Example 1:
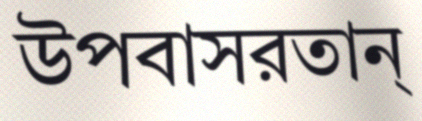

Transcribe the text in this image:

উপবাসরতান্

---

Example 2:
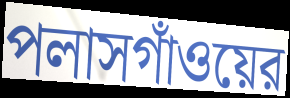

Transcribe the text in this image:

পলাসগাঁওয়ের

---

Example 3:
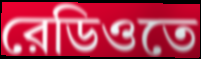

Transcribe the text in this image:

রেডিওতে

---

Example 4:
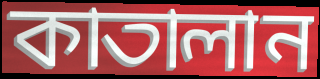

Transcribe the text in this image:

কাতালান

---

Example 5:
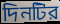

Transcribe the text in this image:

দিনটির